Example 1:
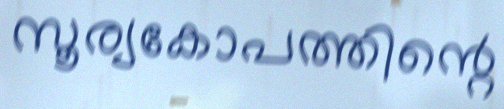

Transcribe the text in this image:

സൂര്യകോപത്തിന്റെ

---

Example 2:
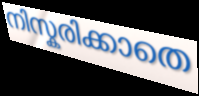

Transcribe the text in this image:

നിസ്കരിക്കാതെ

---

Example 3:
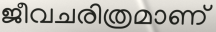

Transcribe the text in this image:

ജീവചരിത്രമാണ്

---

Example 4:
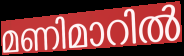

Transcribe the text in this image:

മണിമാറിൽ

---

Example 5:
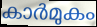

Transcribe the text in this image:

കാർമുകം